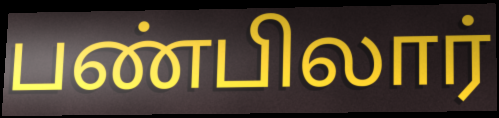
பண்பிலார்